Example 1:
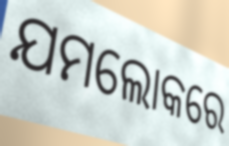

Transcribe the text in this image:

ଯମଲୋକରେ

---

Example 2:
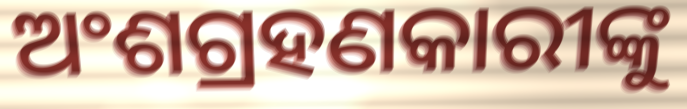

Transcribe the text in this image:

ଅଂଶଗ୍ରହଣକାରୀଙ୍କୁ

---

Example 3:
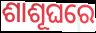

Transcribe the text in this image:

ଶାଶୂଘରେ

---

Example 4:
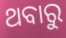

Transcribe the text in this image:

ଥବାରୁ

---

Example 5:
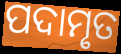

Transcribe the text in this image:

ପଦାମୃତ